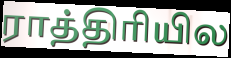
ராத்திரியில